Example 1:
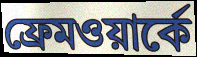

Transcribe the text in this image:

ফ্রেমওয়ার্কে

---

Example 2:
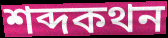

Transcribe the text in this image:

শব্দকথন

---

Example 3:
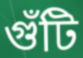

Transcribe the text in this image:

গুঁটি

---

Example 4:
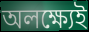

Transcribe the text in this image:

অলক্ষ্যেই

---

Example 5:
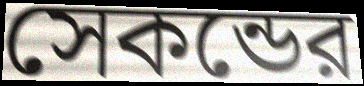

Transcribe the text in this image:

সেকন্ডের